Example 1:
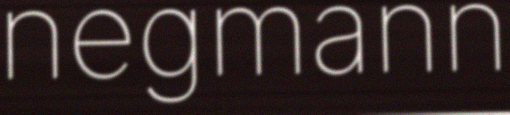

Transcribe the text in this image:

negmann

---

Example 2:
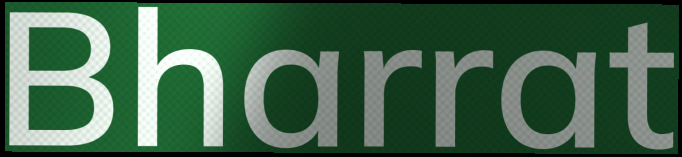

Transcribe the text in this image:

Bharrat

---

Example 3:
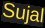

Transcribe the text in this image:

Sujal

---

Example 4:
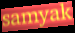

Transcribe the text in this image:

samyak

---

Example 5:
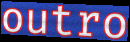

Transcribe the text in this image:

outro